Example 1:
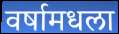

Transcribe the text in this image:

वर्षामधला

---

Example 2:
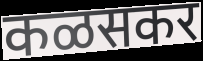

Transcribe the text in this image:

कळसकर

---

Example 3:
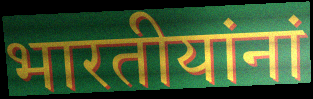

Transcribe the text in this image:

भारतीयांनां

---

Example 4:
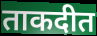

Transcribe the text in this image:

ताकदीत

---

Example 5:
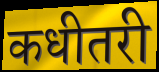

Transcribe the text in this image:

कधीतरी